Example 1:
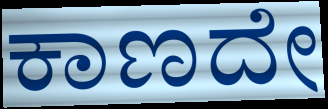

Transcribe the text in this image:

ಕಾಣದೇ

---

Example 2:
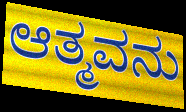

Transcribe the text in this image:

ಆತ್ಮವನು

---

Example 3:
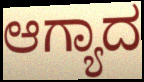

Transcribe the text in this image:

ಆಗ್ಯಾದ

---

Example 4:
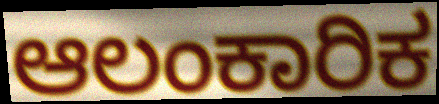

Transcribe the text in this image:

ಆಲಂಕಾರಿಕ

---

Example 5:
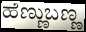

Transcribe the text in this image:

ಹೆಣ್ಣುಬಣ್ಣ